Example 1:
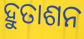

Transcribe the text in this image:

ହୁତାଶନ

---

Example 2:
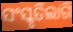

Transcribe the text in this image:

ସଂସ୍କୃତିଲାଗି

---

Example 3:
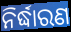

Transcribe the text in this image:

ନିର୍ଦ୍ଧାରଣ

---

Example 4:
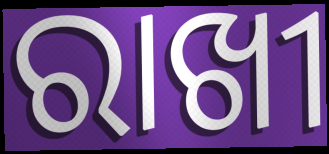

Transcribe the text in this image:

ରାଖୀ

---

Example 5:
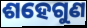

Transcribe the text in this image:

ଶହେଗୁଣ